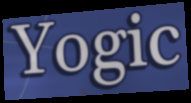
Yogic